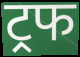
ट्रफ